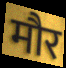
मौर